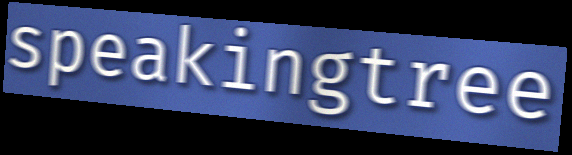
speakingtree